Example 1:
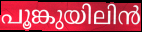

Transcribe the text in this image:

പൂങ്കുയിലിൻ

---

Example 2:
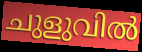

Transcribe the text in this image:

ചുളുവിൽ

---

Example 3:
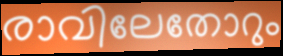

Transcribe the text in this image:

രാവിലേതോറും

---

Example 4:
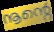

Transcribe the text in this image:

നൂന്റെ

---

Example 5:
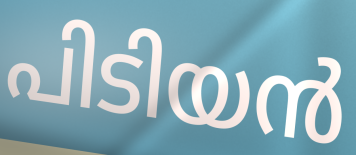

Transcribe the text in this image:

പിടിയൻ